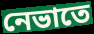
নেভাতে